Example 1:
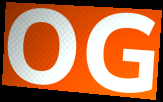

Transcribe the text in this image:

OG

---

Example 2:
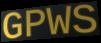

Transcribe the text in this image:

GPWS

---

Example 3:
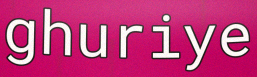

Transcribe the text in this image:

ghuriye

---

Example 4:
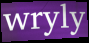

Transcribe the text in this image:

wryly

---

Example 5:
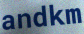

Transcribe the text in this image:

andkm